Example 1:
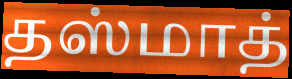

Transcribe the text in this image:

தஸ்மாத்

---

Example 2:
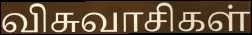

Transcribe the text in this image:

விசுவாசிகள்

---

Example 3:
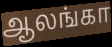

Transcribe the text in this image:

ஆலங்கா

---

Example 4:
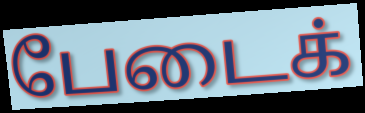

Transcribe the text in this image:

பேடைக்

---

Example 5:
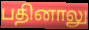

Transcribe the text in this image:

பதினாலு